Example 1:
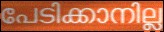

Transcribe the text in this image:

പേടിക്കാനില്ല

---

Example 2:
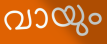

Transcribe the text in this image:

വായും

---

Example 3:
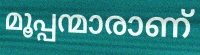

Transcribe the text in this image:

മൂപ്പന്മാരാണ്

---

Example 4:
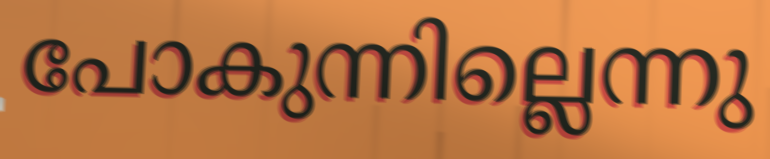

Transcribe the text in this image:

പോകുന്നില്ലെന്നു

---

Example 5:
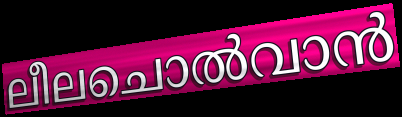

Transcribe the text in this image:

ലീലചൊൽവാൻ